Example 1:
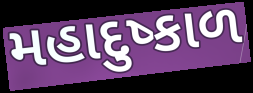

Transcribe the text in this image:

મહાદુષ્કાળ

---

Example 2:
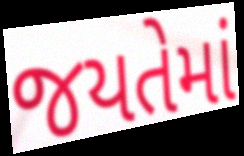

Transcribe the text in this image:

જયતેમાં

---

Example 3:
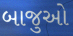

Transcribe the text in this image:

બાજુઓ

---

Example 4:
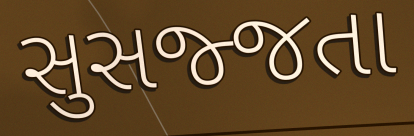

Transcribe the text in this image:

સુસજ્જતા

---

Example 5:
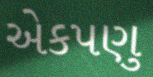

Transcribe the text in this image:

એકપણુ